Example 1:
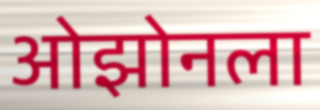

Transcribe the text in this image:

ओझोनला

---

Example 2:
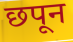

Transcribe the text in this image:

छपून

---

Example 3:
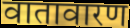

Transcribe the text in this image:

वातावारण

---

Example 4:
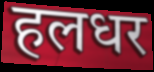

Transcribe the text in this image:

हलधर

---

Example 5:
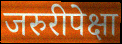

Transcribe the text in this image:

जरुरीपेक्षा